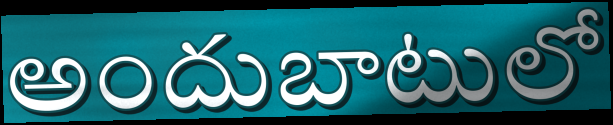
అందుబాటులో